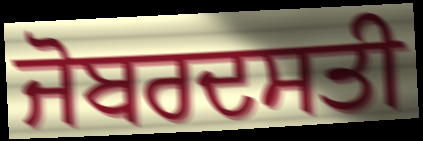
ਜੋਬਰਦਸਤੀ